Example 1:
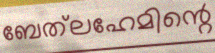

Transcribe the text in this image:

ബേത്‌ലഹേമിന്റെ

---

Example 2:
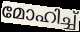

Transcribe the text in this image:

മോഹിച്ച്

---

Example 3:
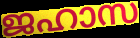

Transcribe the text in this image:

ജഹാസ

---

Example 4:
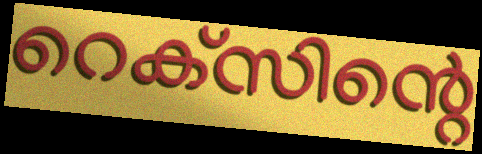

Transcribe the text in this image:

റെക്‌സിന്റെ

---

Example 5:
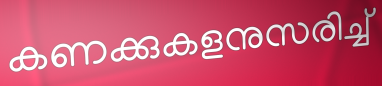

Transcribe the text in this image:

കണക്കുകളനുസരിച്ച്